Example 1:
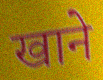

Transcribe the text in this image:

खाने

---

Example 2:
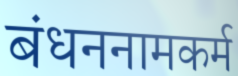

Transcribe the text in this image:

बंधननामकर्म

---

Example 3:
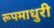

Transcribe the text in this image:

रूपमाधुरी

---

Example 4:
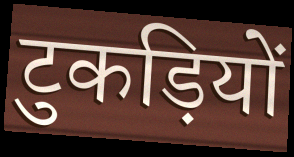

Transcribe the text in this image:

टुकड़ियों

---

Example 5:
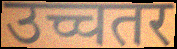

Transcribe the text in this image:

उच्चतर